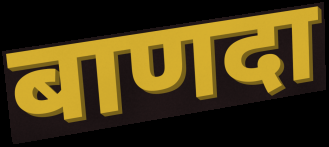
बाणदा